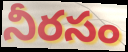
నీరసం